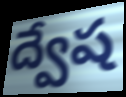
ద్వేష